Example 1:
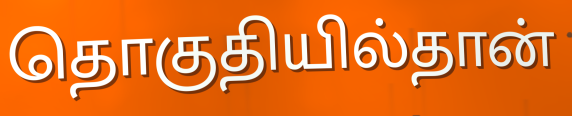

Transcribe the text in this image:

தொகுதியில்தான்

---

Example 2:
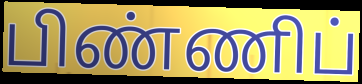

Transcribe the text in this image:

பிண்ணிப்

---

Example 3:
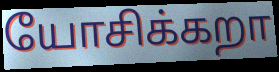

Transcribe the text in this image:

யோசிக்கறா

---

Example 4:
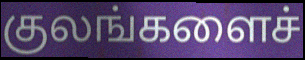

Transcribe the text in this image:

குலங்களைச்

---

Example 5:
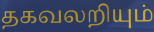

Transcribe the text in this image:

தகவலறியும்